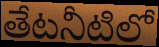
తేటనీటిలో